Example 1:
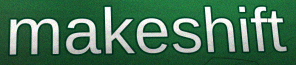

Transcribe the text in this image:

makeshift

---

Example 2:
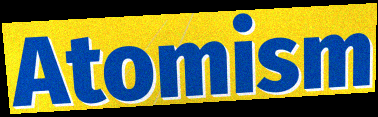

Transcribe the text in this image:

Atomism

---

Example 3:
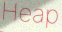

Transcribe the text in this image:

Heap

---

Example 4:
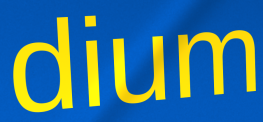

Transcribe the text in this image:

dium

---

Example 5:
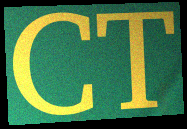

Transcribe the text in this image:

CT